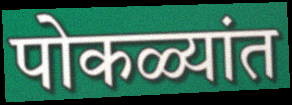
पोकळ्यांत